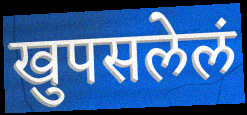
खुपसलेलं